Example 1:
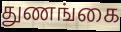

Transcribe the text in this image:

துணங்கை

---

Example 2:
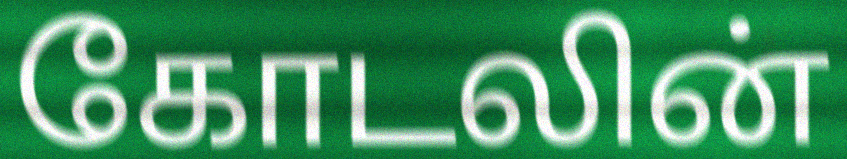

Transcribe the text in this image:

கோடலின்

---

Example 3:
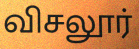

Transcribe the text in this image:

விசலூர்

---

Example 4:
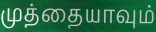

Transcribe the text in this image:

முத்தையாவும்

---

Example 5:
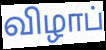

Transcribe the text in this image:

விழாப்